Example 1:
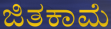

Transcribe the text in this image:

ಜಿತಕಾಮೆ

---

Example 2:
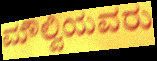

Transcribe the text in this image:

ಮೌಲ್ವಿಯವರು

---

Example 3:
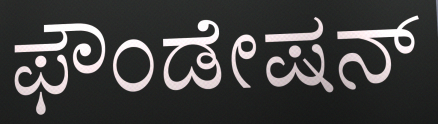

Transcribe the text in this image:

ಫೌಂಡೇಷನ್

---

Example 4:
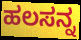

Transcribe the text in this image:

ಹಲಸನ್ನ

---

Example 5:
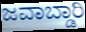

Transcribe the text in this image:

ಜವಾಬ್ಡಾರಿ